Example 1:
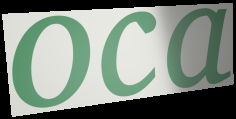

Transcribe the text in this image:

oca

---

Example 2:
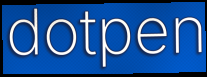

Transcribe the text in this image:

dotpen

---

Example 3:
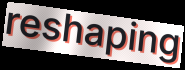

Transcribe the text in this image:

reshaping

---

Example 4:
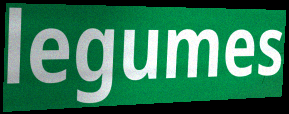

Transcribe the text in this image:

legumes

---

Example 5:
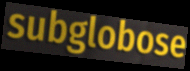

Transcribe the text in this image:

subglobose